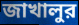
জাখালুর